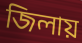
জিলায়